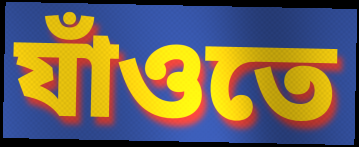
যাঁওতে